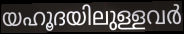
യഹൂദയിലുള്ളവർ